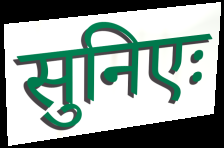
सुनिएः